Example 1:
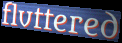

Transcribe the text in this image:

fluttered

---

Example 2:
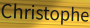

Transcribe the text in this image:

Christophe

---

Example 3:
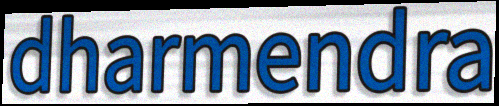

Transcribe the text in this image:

dharmendra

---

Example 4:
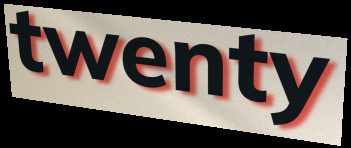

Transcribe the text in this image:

twenty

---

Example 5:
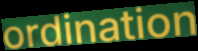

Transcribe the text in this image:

ordination